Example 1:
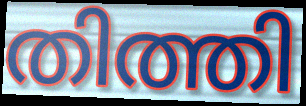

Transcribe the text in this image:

തിത്തി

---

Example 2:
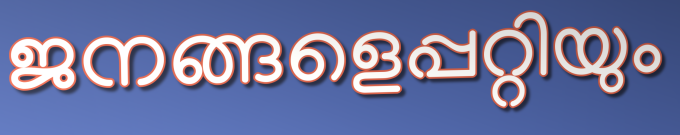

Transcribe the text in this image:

ജനങ്ങളെപ്പറ്റിയും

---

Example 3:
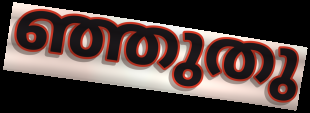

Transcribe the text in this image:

ഞ്ഞുതു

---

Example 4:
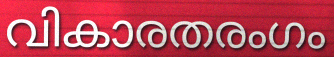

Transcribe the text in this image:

വികാരതരംഗം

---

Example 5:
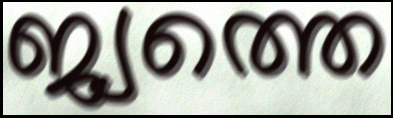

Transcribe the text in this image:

ജ്യത്തെ